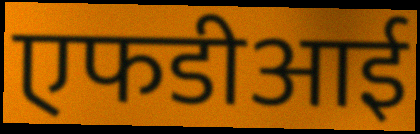
एफडीआई